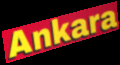
Ankara